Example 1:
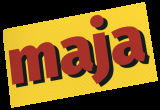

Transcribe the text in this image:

maja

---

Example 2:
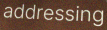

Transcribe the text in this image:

addressing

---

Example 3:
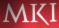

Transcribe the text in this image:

MKI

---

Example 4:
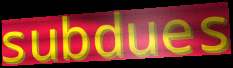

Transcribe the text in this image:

subdues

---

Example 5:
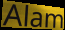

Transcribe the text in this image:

Alam